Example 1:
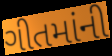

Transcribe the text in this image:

ગીતમાંની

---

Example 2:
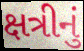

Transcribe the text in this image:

ક્ષત્રીનું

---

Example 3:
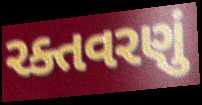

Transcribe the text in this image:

રક્તવરણું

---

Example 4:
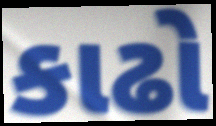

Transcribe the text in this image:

કાઢો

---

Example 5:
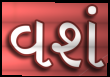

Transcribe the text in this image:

વશં